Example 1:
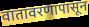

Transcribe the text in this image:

वातावरणापासून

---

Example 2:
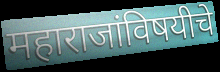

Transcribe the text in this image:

महाराजांविषयीचे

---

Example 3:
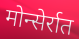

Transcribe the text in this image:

मोन्सेर्रात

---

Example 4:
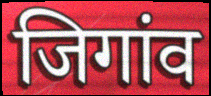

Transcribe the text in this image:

जिगांव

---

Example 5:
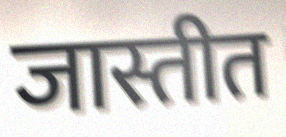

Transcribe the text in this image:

जास्तीत